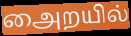
அைறயில்